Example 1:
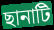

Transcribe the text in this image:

ছানাটি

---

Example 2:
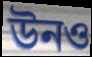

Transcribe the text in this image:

উনও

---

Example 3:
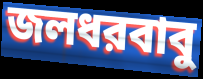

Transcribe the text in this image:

জলধরবাবু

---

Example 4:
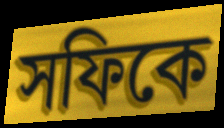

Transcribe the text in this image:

সফিকে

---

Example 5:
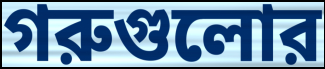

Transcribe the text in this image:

গরুগুলোর